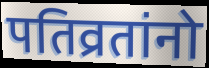
पतिव्रतांनो